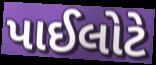
પાઈલોટે